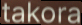
takora